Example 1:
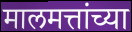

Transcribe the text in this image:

मालमत्तांच्या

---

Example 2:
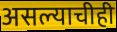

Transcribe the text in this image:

असल्याचीही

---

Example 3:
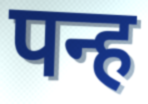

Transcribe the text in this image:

पन्ह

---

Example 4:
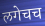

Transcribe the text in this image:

लगेचच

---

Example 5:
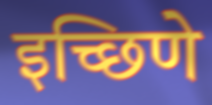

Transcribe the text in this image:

इच्छिणे